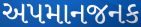
અપમાનજનક